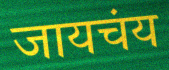
जायचंय